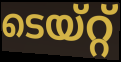
ടെയ്റ്റ്